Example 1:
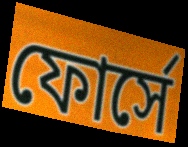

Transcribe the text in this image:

ফোর্সে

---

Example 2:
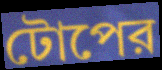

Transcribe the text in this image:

টোপের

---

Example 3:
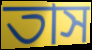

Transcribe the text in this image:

তাস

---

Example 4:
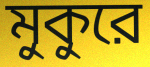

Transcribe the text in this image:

মুকুরে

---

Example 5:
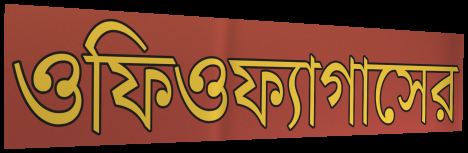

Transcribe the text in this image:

ওফিওফ্যাগাসের